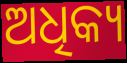
ଅଧିକ୍ୟ